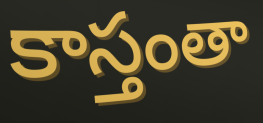
కాస్తంతా